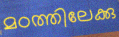
മഠത്തിലേക്കു